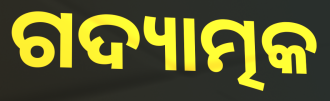
ଗଦ୍ୟାତ୍ମକ